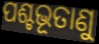
ପଶ୍ଚଭୂତାଣୁ